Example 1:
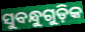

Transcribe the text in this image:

ସୁବନ୍ଧୁଗୁଡ଼ିକ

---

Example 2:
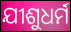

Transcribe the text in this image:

ଯୀଶୁଧର୍ମ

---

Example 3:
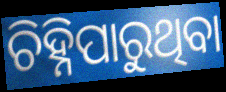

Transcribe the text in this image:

ଚିହ୍ନିପାରୁଥିବା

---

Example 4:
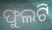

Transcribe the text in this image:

ଫୁଲଟି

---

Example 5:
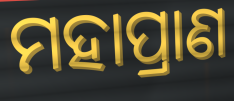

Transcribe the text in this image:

ମହାପ୍ରାଣ